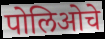
पोलिओचे